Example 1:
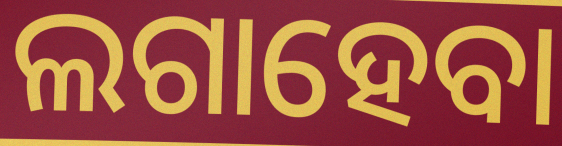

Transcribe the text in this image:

ଲଗାହେବା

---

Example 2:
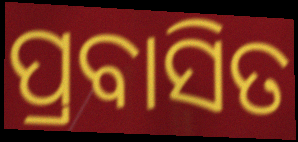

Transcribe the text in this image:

ପ୍ରବାସିତ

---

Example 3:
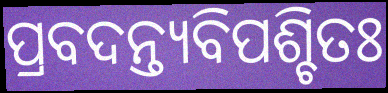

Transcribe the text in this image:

ପ୍ରବଦନ୍ତ୍ୟବିପଶ୍ଚିତଃ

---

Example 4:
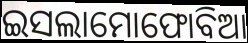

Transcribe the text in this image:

ଇସଲାମୋଫୋବିଆ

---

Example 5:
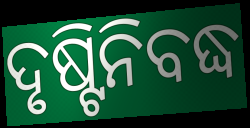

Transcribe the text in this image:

ଦୃଷ୍ଟିନିବଦ୍ଧ